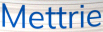
Mettrie